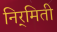
निर्मिती